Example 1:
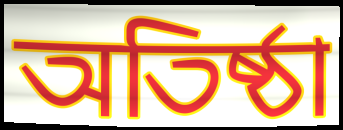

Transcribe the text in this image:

অতিষ্ঠা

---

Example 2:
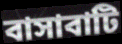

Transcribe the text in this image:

বাসাবাটি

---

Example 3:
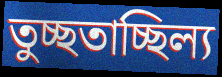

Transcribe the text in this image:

তুচ্ছতাচ্ছিল্য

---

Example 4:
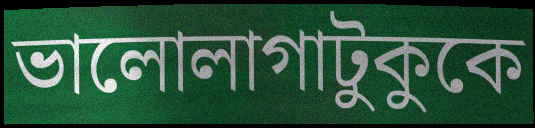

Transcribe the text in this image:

ভালোলাগাটুকুকে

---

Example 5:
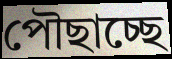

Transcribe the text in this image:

পৌছাচ্ছে